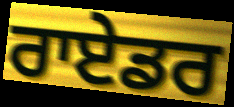
ਰਾਏਡਰ